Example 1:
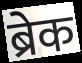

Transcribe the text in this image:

ब्रेक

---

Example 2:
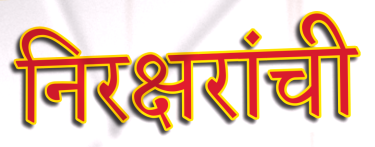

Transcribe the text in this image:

निरक्षरांची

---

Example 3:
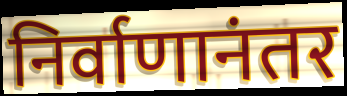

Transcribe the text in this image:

निर्वाणानंतर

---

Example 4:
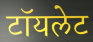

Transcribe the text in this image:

टॉयलेट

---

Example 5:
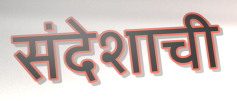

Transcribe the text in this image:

संदेशाची